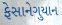
ફેસાનેગુયાન